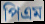
পিএম